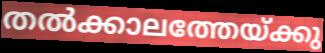
തൽക്കാലത്തേയ്ക്കു